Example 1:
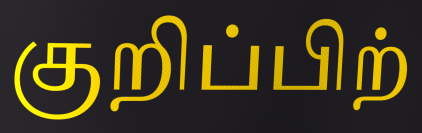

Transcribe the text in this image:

குறிப்பிற்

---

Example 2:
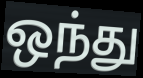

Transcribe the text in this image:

ஒந்து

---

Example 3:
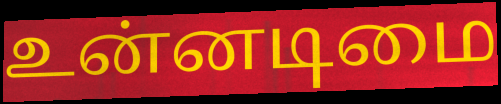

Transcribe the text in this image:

உன்னடிமை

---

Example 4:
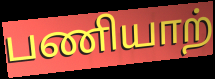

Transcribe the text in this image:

பணியாற்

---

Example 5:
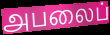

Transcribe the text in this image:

அபலைப்